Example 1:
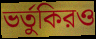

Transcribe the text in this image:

ভর্তুকিরও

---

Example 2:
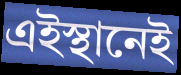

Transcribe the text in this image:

এইস্থানেই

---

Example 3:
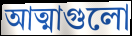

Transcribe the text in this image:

আত্মাগুলো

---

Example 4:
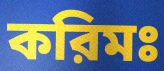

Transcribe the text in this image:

করিমঃ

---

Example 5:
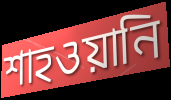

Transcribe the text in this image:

শাহওয়ানি